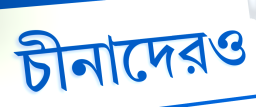
চীনাদেরও